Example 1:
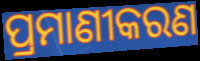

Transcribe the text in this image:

ପ୍ରମାଣୀକରଣ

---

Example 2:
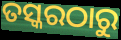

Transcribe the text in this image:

ତସ୍କରଠାରୁ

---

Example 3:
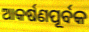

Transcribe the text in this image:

ଆକର୍ଷଣପୂର୍ବକ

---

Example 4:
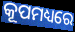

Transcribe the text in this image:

କୂପମଧ୍ୟରେ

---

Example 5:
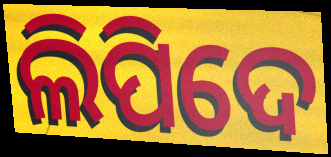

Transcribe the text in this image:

ଲିପିଦେ